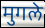
मुगले